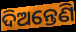
ଦିଅନ୍ତେଣି